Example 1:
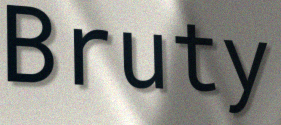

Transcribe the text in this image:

Bruty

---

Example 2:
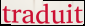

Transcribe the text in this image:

traduit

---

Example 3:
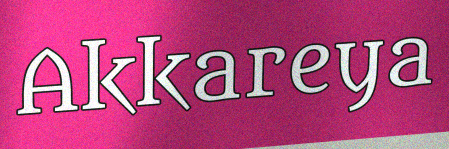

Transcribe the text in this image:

Akkareya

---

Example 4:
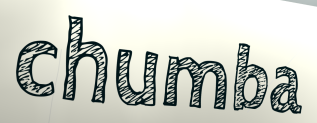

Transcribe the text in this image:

chumba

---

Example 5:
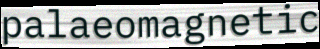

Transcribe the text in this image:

palaeomagnetic